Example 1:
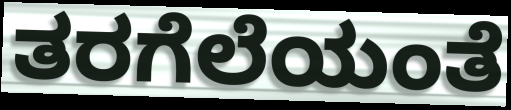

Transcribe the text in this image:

ತರಗೆಲೆಯಂತೆ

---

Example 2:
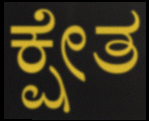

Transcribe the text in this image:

ಕ್ಷೇತ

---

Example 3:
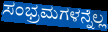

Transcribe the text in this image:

ಸಂಭ್ರಮಗಳನ್ನೆಲ್ಲ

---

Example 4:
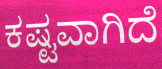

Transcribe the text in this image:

ಕಷ್ಟವಾಗಿದೆ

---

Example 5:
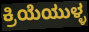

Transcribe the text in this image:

ಕ್ರಿಯೆಯುಳ್ಳ